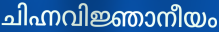
ചിഹ്നവിജ്ഞാനീയം